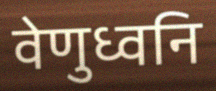
वेणुध्वनि